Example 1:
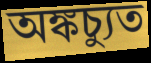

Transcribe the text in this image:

অঙ্কচ্যুত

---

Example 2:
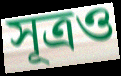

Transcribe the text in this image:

সূত্রও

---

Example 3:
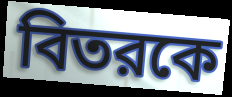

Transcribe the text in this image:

বিতরকে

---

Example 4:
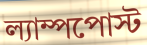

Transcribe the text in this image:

ল্যাম্পপোস্ট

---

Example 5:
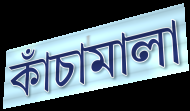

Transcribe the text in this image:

কাঁচামালা